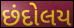
છંદોલય